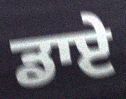
ਡਾਏ